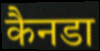
कैनडा